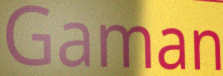
Gaman